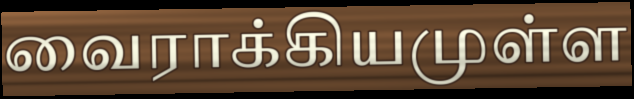
வைராக்கியமுள்ள